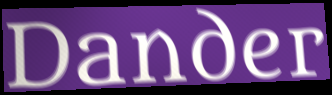
Dander